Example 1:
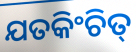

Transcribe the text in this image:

ଯତକିଂଚିତ୍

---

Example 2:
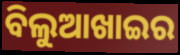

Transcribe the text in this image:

ବିଲୁଆଖାଇର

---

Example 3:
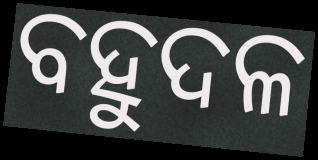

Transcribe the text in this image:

ବହୁଦଳ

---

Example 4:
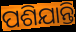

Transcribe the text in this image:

ପଶିଯାନ୍ତି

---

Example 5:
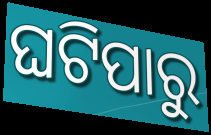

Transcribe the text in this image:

ଘଟିପାରୁ